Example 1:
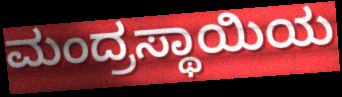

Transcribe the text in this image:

ಮಂದ್ರಸ್ಥಾಯಿಯ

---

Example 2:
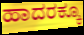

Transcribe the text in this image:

ಹಾದರಕ್ಕೂ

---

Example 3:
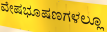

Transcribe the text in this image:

ವೇಷಭೂಷಣಗಳಲ್ಲೂ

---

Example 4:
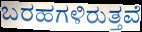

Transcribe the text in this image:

ಬರಹಗಳಿರುತ್ತವೆ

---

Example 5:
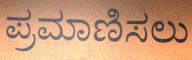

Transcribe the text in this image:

ಪ್ರಮಾಣಿಸಲು